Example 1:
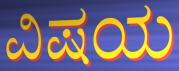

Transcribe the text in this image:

ವಿಷಯ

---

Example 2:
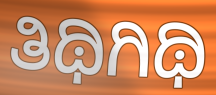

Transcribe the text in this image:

ತಿಥಿಗಿಥಿ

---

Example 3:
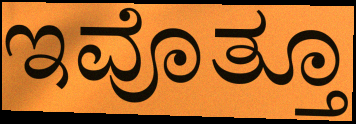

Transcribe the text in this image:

ಇವೊತ್ತೂ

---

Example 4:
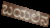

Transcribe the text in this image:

ಬಯಲಿನ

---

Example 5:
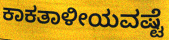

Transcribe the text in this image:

ಕಾಕತಾಳೀಯವಷ್ಟೆ